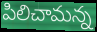
పిలిచామన్న